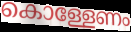
കൊള്ളേണം